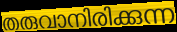
തരുവാനിരിക്കുന്ന